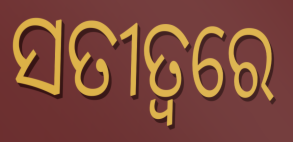
ସତୀତ୍ୱରେ